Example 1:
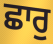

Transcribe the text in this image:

ਛਾਰੁ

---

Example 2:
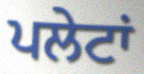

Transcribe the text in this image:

ਪਲੇਟਾਂ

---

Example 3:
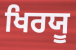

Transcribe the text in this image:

ਖਿਰਯੂ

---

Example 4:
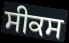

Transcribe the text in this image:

ਸੀਕਸ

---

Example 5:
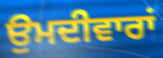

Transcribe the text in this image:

ਉਮਦੀਵਾਰਾਂ